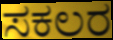
ಸಕಲರ